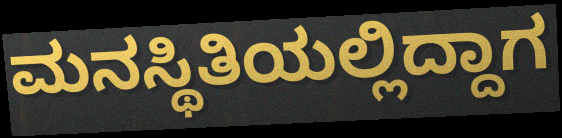
ಮನಸ್ಥಿತಿಯಲ್ಲಿದ್ದಾಗ